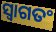
ସ୍ୱାଗତଂ